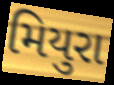
મિયુરા